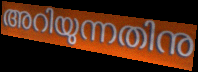
അറിയുന്നതിനു